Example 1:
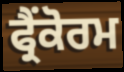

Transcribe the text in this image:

ਫ੍ਰੈਂਕੋਰਮ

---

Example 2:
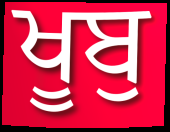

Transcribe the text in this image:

ਖੂਬੁ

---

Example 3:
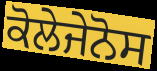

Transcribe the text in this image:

ਕੋਲੇਜੇਨੋਸ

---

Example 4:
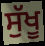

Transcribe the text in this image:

ਸੁੱਖੂ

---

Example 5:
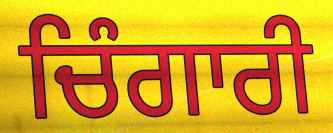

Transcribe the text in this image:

ਚਿੰਗਾਰੀ